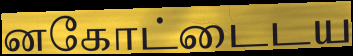
னகோட்டைடய